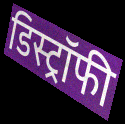
डिस्ट्रॉफी